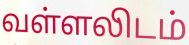
வள்ளலிடம்